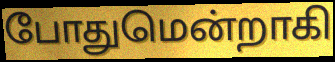
போதுமென்றாகி